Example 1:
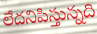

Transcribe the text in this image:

లేదనిపిస్తున్నది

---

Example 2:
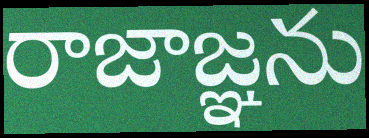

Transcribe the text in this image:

రాజాజ్ఞను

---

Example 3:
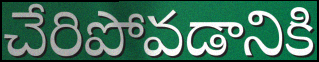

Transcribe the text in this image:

చేరిపోవడానికి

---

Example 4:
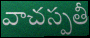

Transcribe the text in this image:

వాచస్పతీ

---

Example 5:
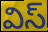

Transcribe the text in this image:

విస్